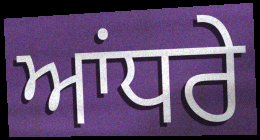
ਆਂਧਰੇ